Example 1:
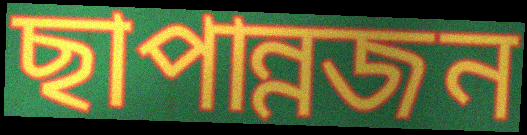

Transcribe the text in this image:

ছাপান্নজন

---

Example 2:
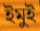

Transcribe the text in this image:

ইমুই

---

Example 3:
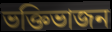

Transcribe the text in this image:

ভক্তিভাজন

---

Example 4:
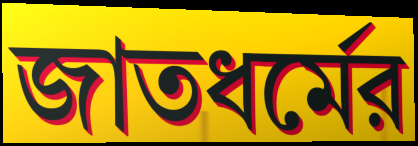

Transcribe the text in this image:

জাতধর্মের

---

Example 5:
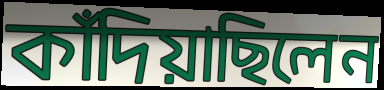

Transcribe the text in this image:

কাঁদিয়াছিলেন